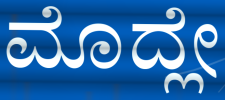
ಮೊದ್ಲೇ